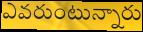
ఎవరుంటున్నారు